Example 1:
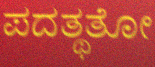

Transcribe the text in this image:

ಪದತ್ಥತೋ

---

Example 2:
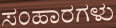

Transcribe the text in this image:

ಸಂಹಾರಗಳು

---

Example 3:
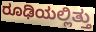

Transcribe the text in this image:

ರೂಢಿಯಲ್ಲಿತ್ತು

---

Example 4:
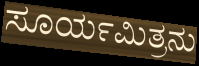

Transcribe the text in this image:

ಸೂರ್ಯಮಿತ್ರನು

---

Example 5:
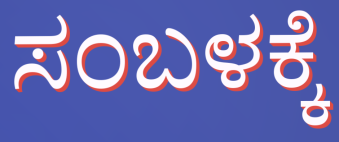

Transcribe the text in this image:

ಸಂಬಳಕ್ಕೆ